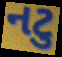
નટુ